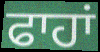
ਫਾਹਾਂ